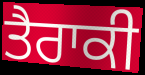
ਤੈਰਾਕੀ